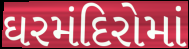
ઘરમંદિરોમાં